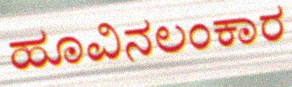
ಹೂವಿನಲಂಕಾರ